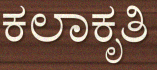
ಕಲಾಕೃತಿ